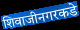
शिवाजीनगरकडे